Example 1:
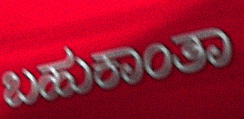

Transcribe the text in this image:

ಬಹುಕಾಂತಾ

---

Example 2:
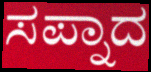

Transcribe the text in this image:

ಸಪ್ನಾದ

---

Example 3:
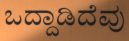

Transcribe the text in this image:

ಒದ್ದಾಡಿದೆವು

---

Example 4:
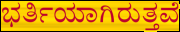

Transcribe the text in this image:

ಭರ್ತಿಯಾಗಿರುತ್ತವೆ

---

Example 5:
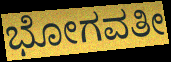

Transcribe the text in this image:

ಭೋಗವತೀ